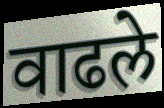
वाढले